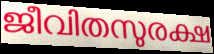
ജീവിതസുരക്ഷ